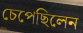
চেপেছিলেন